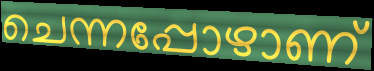
ചെന്നപ്പോഴാണ്